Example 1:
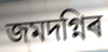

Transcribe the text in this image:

জমদগ্নিৰ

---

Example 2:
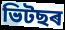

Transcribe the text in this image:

ভিটছৰ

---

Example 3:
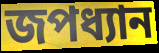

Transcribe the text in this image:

জপধ্যান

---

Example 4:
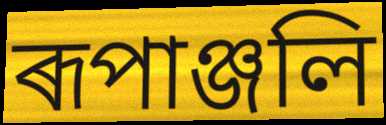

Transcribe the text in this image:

ৰূপাঞ্জলি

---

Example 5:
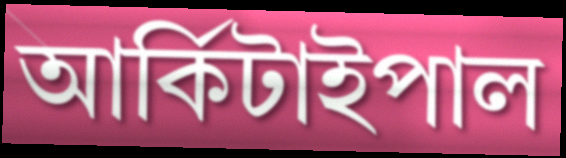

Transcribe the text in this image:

আৰ্কিটাইপাল